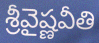
శ్రీవైష్ణవీతి